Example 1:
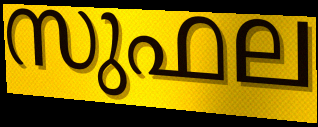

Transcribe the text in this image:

സുഫല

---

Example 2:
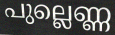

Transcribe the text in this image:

പുല്ലെണ്ണ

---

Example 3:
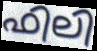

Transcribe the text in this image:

ഫിലി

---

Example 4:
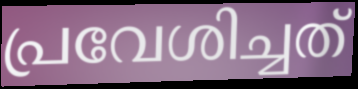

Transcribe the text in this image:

പ്രവേശിച്ചത്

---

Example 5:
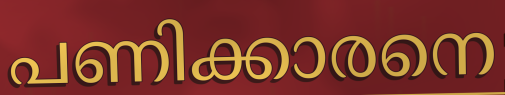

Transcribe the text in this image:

പണിക്കാരനെ